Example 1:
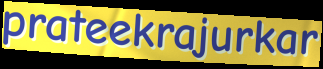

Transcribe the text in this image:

prateekrajurkar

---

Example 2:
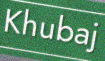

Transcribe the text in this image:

Khubaj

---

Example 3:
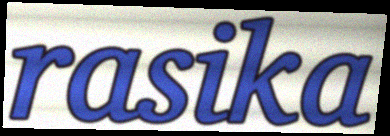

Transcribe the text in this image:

rasika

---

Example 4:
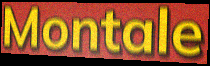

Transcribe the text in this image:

Montale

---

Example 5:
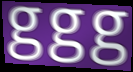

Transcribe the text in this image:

ggg